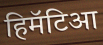
हिमॅटिआ